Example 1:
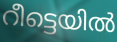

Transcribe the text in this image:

റീട്ടെയിൽ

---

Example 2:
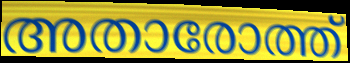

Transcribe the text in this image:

അതാരോത്ത്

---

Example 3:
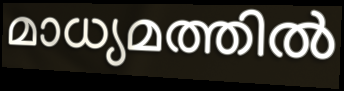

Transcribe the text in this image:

മാധ്യമത്തിൽ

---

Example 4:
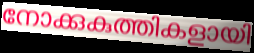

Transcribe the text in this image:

നോക്കുകുത്തികളായി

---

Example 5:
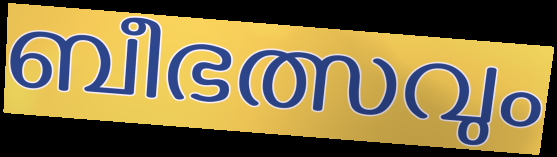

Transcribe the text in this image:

ബീഭത്സവും